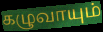
கழுவாயும்